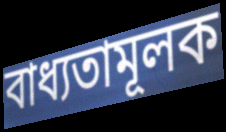
বাধ্যতামূলক